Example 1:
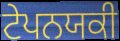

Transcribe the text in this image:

ਟੇਪਨਯਕੀ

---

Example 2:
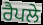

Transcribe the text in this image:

ਰੈਪਲੇ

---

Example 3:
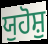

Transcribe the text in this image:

ਯੁਹੋਸ਼ੁ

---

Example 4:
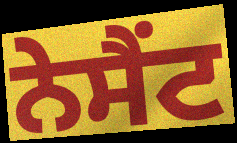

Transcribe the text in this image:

ਨੇਸੈਂਟ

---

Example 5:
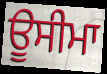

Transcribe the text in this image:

ਊਸੀਮਾ